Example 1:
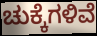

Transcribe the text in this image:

ಚುಕ್ಕೆಗಳಿವೆ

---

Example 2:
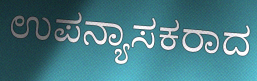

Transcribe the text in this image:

ಉಪನ್ಯಾಸಕರಾದ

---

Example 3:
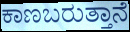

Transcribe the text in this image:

ಕಾಣಬರುತ್ತಾನೆ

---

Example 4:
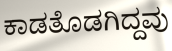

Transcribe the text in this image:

ಕಾಡತೊಡಗಿದ್ದವು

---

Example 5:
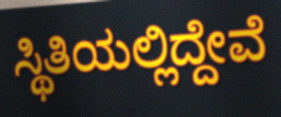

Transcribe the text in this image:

ಸ್ಥಿತಿಯಲ್ಲಿದ್ದೇವೆ